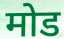
मोड